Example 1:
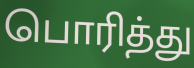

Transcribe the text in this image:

பொரித்து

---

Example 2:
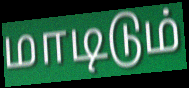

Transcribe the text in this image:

மாடிடும்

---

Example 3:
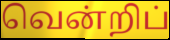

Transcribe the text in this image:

வென்றிப்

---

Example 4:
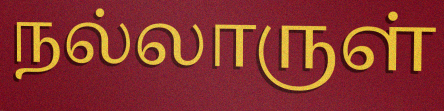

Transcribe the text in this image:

நல்லாருள்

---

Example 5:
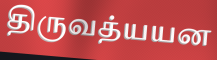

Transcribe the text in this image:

திருவத்யயன